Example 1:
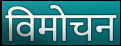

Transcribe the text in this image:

विमोचन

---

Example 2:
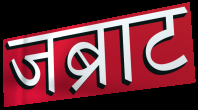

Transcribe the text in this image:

जब्राट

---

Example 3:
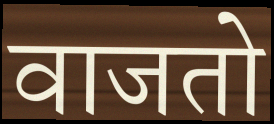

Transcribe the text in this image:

वाजतो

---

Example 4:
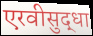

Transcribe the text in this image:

एरवीसुद्धा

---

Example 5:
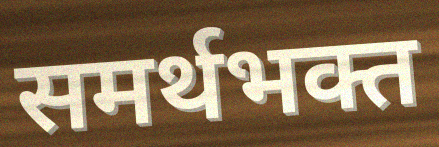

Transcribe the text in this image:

समर्थभक्त